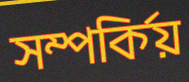
সম্পৰ্কিয়